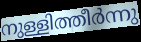
നുള്ളിത്തീർന്നു